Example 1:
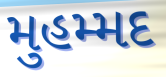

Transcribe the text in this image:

મુહમ્મદ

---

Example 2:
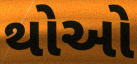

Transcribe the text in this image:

થોઓ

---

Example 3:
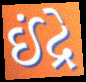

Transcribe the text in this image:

ઈંદ્રે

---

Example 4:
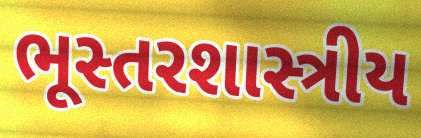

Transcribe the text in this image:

ભૂસ્તરશાસ્ત્રીય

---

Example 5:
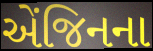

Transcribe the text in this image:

એંજિનના